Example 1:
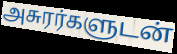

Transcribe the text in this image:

அசுரர்களுடன்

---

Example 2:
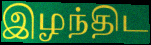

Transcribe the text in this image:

இழந்திட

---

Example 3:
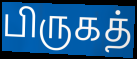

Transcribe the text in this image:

பிருகத்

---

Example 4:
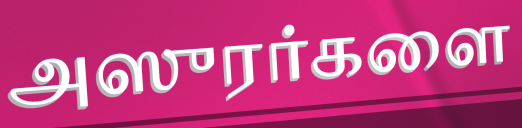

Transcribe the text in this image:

அஸுரர்களை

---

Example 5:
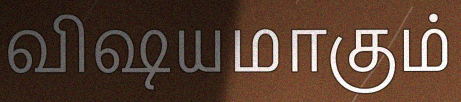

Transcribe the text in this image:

விஷயமாகும்